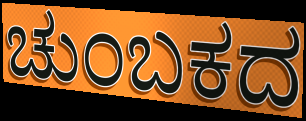
ಚುಂಬಕದ